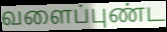
வளைப்புண்ட